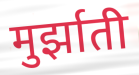
मुर्झाती